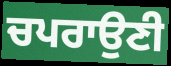
ਚਪਰਾਉਣੀ